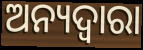
ଅନ୍ୟଦ୍ୱାରା